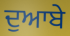
ਦੁਆਬੇ